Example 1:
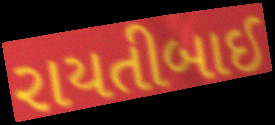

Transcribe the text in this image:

રાયતીબાઈ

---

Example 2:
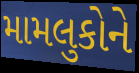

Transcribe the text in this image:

મામલુકોને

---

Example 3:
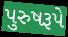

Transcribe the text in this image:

પુરુષરૂપે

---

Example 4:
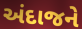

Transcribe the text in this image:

અંદાજને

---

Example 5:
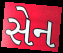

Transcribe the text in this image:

સેન